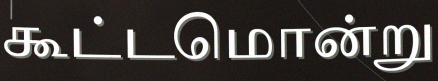
கூட்டமொன்று